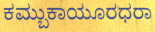
ಕಮ್ಬುಕಾಯೂರಧರಾ